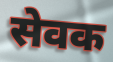
सेवक